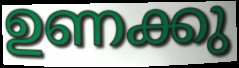
ഉണക്കു